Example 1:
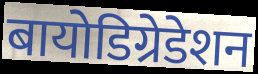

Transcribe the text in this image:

बायोडिग्रेडेशन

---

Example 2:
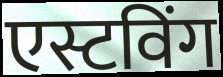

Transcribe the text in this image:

एस्टविंग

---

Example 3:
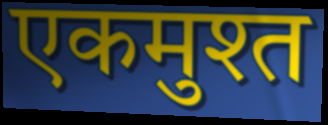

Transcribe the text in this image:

एकमुश्‍त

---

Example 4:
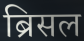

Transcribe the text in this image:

ब्रिसल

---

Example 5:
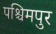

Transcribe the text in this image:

पश्चिमपुर